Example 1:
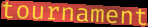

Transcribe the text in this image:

tournament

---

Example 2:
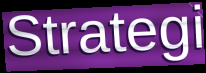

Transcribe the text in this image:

Strategi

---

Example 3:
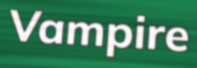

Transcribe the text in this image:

Vampire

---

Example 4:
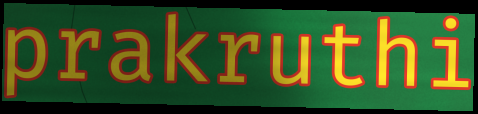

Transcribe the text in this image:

prakruthi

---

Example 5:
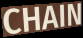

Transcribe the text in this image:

CHAIN